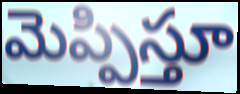
మెప్పిస్తూ